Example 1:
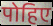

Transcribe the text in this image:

पोहिए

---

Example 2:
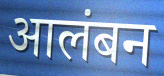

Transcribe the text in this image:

आलंबन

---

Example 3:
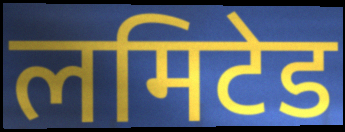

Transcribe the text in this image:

लमिटेड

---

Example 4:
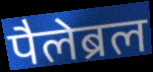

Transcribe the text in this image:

पैलेब्रल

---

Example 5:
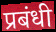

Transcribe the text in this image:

प्रबंधी